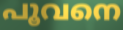
പൂവനെ